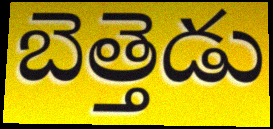
బెత్తెడు